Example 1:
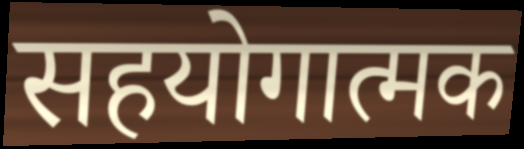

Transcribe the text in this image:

सहयोगात्मक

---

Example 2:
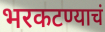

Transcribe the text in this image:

भरकटण्याचं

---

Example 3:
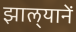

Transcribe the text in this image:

झाल्यानें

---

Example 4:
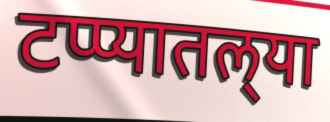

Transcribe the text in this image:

टप्प्यातल्या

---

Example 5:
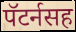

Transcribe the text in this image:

पॅटर्नसह